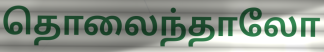
தொலைந்தாலோ